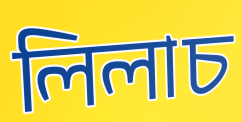
লিলাচ